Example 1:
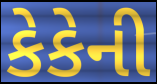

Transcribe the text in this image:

કેકેની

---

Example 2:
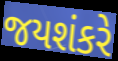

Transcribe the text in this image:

જયશંકરે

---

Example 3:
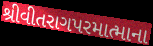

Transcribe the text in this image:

શ્રીવીતરાગપરમાત્માના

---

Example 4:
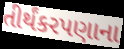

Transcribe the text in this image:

તીર્થંકરપણાના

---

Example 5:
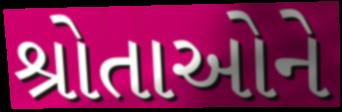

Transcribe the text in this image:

શ્રોતાઓને